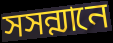
সসন্মানে